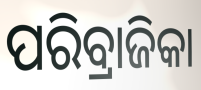
ପରିବ୍ରାଜିକା